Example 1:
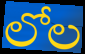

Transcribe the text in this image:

లోల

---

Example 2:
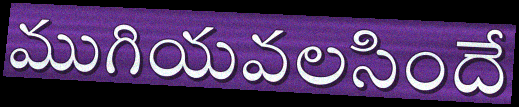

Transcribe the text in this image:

ముగియవలసిందే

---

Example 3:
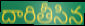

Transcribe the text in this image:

దారితీసిన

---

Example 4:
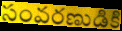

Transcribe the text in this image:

సంవరణుడికి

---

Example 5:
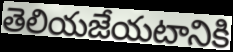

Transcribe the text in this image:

తెలియజేయటానికి